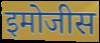
इमोजीस